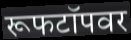
रूफटॉपवर